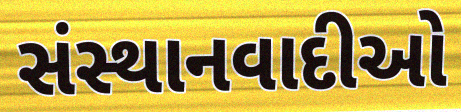
સંસ્થાનવાદીઓ